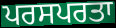
ਪਰਸਪਰਤਾ